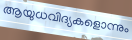
ആയുധവിദ്യകളൊന്നും